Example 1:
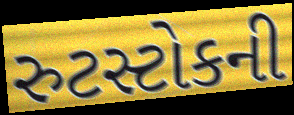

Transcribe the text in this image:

રુટસ્ટોકની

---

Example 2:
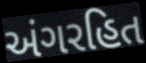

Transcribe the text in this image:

અંગરહિત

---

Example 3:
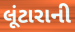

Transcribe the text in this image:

લૂંટારાની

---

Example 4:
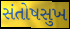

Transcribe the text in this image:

સંતોષસુખ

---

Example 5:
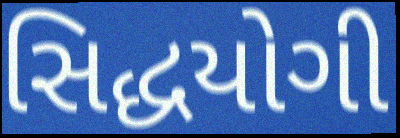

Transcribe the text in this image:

સિદ્ધયોગી